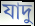
যাদু